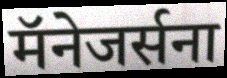
मॅनेजर्सना